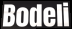
Bodeli